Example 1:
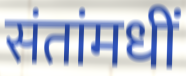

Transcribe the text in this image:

संतांमधीं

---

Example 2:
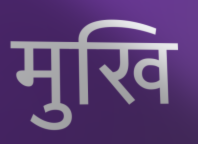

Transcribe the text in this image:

मुखि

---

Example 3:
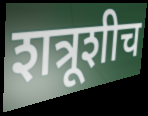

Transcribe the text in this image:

शत्रूशीच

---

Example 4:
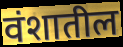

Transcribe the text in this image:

वंशातील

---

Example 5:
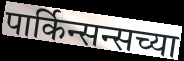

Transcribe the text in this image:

पार्किन्सन्सच्या